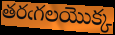
తరఁగలయొక్క